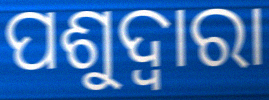
ପଶୁଦ୍ୱାରା